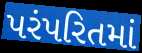
પરંપરિતમાં